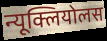
न्यूक्लियोलस